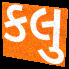
કલુ